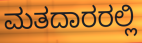
ಮತದಾರರಲ್ಲಿ